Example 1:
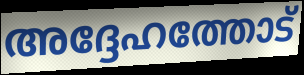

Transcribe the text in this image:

അദ്ദേഹത്തോട്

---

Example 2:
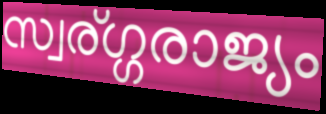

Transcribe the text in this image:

സ്വര്ഗ്ഗരാജ്യം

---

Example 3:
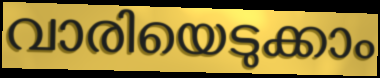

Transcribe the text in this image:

വാരിയെടുക്കാം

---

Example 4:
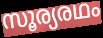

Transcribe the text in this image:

സൂര്യരഥം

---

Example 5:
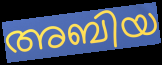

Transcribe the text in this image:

അബിയ